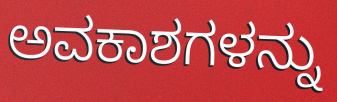
ಅವಕಾಶಗಳನ್ನು